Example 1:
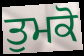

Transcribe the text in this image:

ਤੁਮਕੋ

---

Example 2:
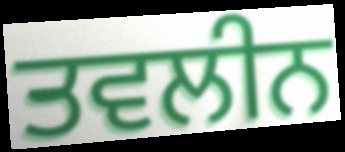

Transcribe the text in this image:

ਤਵਲੀਨ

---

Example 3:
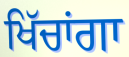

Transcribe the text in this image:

ਖਿੱਚਾਂਗਾ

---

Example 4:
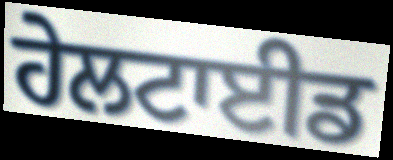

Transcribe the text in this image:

ਹੇਲਟਾਈਡ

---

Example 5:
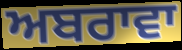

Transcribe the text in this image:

ਅਬਰਾਵਾ